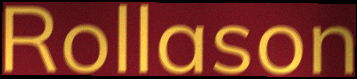
Rollason